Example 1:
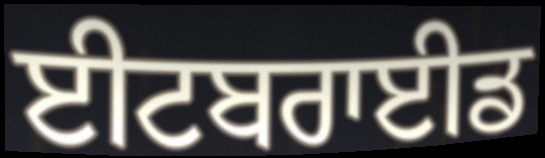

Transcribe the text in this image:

ਈਟਬਰਾਈਡ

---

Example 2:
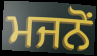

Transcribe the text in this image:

ਮਜਨੋਂ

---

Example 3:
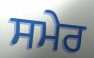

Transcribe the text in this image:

ਸਮੇਰ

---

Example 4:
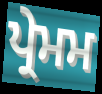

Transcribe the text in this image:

ਪ੍ਰੇਮਮ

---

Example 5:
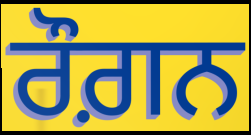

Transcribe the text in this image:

ਰੌਗ਼ਨ